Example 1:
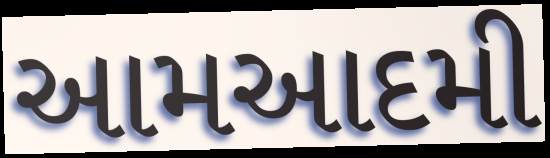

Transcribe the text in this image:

આમઆદમી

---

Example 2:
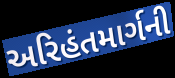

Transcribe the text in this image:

અરિહંતમાર્ગની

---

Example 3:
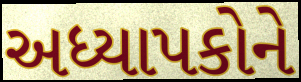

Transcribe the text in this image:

અધ્યાપકોને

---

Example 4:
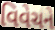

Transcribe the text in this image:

વિવેચને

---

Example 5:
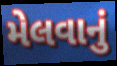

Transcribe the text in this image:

મેલવાનું